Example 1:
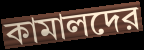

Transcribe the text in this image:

কামালদের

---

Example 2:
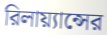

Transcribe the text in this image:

রিলায়্যান্সের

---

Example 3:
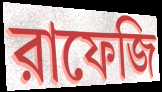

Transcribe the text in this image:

রাফেজি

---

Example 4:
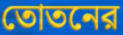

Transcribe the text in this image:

তোতনের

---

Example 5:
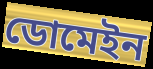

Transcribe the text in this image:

ডোমেইন